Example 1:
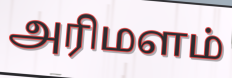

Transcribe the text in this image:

அரிமளம்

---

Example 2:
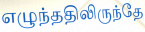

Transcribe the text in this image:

எழுந்ததிலிருந்தே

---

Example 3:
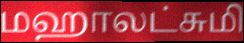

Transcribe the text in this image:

மஹாலட்சுமி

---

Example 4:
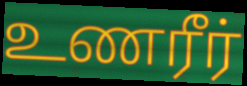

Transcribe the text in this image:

உணரீர்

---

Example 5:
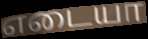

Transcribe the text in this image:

எடையா